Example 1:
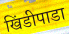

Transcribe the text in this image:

खिंडीपाडा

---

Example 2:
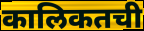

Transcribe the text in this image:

कालिकतची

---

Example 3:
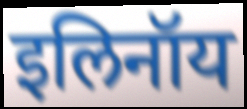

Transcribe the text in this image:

इलिनॉय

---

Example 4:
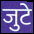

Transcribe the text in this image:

जुटे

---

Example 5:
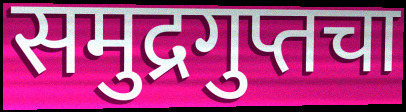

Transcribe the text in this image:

समुद्रगुप्तचा